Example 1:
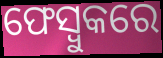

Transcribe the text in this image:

ଫେସ୍ବୁକରେ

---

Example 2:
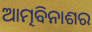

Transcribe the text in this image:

ଆତ୍ମବିନାଶର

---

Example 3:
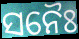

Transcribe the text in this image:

ସନୈଃ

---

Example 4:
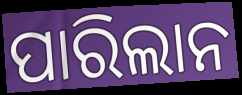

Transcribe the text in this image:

ପାରିଲାନ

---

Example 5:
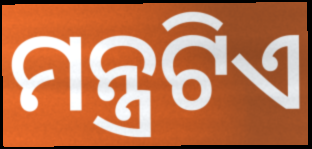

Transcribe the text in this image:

ମନ୍ତ୍ରଟିଏ